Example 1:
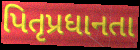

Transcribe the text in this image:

પિતૃપ્રધાનતા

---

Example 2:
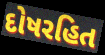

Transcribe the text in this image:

દોષરહિત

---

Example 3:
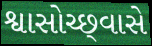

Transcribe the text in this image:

શ્વાસોચ્છ્‍વાસે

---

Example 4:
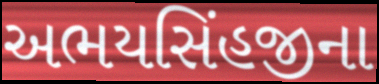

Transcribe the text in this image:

અભયસિંહજીના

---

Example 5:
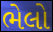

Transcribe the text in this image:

ભેલો